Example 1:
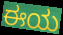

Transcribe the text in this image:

ಈಯ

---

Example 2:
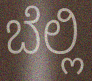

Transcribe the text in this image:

ಬೆಲ್ಲಿ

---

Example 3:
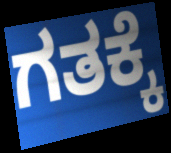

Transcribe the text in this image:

ಗತಕ್ಕೆ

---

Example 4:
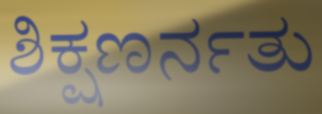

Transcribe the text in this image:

ಶಿಕ್ಷಣರ್ನತು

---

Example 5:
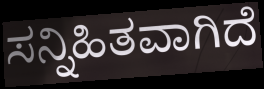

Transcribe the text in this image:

ಸನ್ನಿಹಿತವಾಗಿದೆ